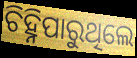
ଚିହ୍ନିପାରୁଥିଲେ